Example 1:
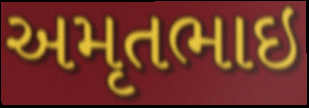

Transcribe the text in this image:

અમૃતભાઇ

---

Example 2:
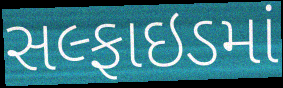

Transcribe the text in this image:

સલ્ફાઇડમાં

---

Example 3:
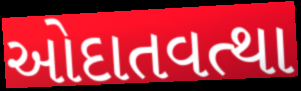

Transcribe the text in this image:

ઓદાતવત્થા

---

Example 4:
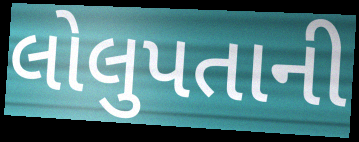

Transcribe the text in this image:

લોલુપતાની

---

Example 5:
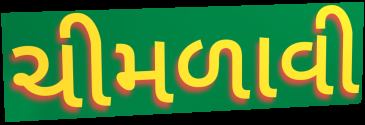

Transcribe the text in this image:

ચીમળાવી